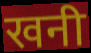
खनी